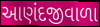
આણંદજીવાળા